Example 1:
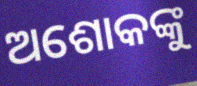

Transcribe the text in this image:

ଅଶୋକଙ୍କୁ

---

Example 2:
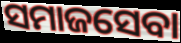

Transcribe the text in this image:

ସମାଜସେବା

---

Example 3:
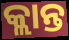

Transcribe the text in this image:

କ୍ଲାନ୍ତ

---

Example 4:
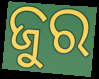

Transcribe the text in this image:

ଜୁର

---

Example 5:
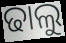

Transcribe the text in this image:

ଢାଲୁ